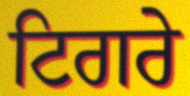
ਟਿਗਰੇ